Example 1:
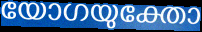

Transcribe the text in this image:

യോഗയുക്തോ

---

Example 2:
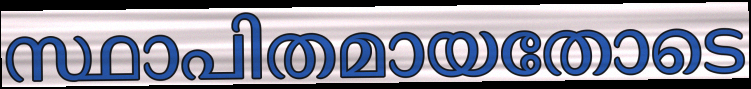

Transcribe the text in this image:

സ്ഥാപിതമായതോടെ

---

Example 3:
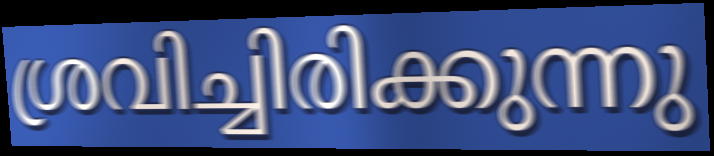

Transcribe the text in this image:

ശ്രവിച്ചിരിക്കുന്നു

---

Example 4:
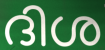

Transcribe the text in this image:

ദിശ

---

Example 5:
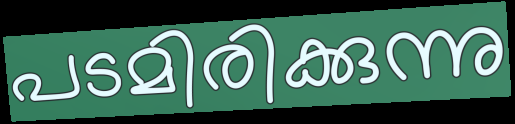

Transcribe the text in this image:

പടമിരിക്കുന്നു